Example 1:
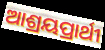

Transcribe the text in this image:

ଆଶ୍ରୟପ୍ରାର୍ଥୀ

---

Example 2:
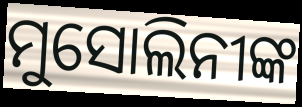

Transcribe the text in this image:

ମୁସୋଲିନୀଙ୍କ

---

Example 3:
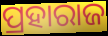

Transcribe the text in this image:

ପ୍ରହାରାଜ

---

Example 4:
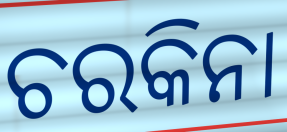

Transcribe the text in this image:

ଚରକିନା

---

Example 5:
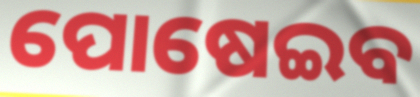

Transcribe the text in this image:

ପୋଷେଇବ